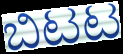
ಬಿಟಟ